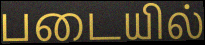
படையில்